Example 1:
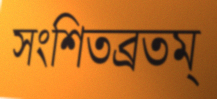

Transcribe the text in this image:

সংশিতব্রতম্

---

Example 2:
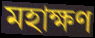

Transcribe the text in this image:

মহাক্ষণ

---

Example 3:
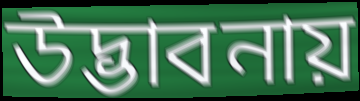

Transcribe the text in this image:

উদ্ভাবনায়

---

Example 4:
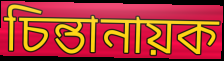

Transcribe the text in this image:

চিন্তানায়ক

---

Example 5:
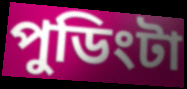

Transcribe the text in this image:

পুডিংটা